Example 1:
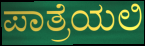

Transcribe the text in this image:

ಪಾತ್ರೆಯಲಿ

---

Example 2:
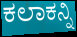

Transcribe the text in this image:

ಕಲಾಕನ್ನಿ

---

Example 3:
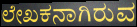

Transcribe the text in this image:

ಲೇಖಕನಾಗಿರುವ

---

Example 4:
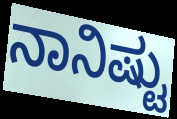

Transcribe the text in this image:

ನಾನಿಷ್ಟು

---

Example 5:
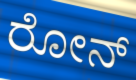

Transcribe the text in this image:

ರೋನ್